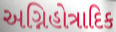
અગ્નિહોત્રાદિક